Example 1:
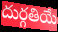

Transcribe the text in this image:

దుర్గతియే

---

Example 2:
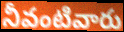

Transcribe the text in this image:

నీవంటివారు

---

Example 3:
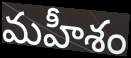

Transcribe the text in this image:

మహీశం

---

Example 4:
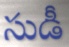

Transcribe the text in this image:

సుడీ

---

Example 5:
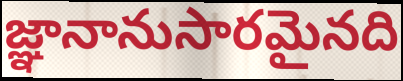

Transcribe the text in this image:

జ్ఞానానుసారమైనది